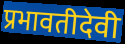
प्रभावतीदेवी